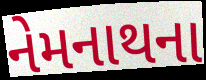
નેમનાથના